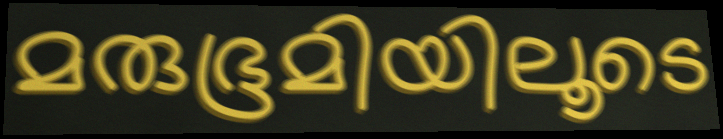
മരുഭൂമിയിലൂടെ